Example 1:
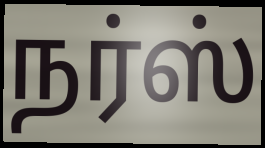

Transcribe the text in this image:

நர்ஸ்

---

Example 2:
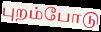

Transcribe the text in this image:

புறம்போடு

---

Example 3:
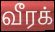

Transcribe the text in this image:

வீரக்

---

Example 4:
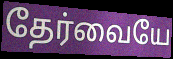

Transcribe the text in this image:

தேர்வையே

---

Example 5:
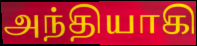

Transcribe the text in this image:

அந்தியாகி